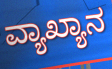
ವ್ಯಾಖ್ಯಾನ